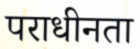
पराधीनता